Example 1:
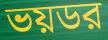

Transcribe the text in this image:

ভয়ডর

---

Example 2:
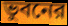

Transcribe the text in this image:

ভুবনের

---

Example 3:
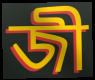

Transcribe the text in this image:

জী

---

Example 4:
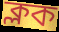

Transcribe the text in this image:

ক্লক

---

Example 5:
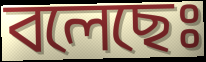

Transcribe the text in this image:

বলেছেঃ